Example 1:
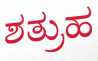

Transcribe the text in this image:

ಶತ್ರುಹ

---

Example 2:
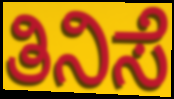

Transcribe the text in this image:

ತಿನಿಸೆ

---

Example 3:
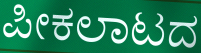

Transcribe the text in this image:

ಪೀಕಲಾಟದ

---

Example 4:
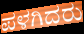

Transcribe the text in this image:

ಪಳಗಿದರು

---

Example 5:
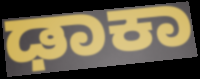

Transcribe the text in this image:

ಢಾಕಾ